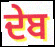
ਦੇਬ